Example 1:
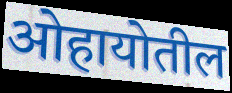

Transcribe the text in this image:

ओहायोतील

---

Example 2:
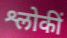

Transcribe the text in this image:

श्लोकीं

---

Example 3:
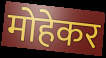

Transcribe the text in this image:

मोहेकर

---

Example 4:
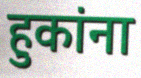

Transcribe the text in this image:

हुकांना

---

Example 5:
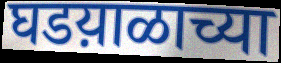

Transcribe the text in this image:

घडय़ाळाच्या